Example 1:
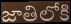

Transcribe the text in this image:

జాతిలోకి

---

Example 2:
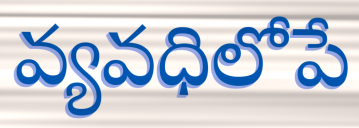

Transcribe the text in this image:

వ్యవధిలోపే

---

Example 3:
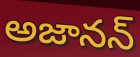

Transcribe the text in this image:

అజానన్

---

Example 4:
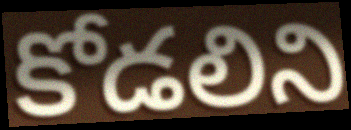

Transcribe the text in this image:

కోడలిని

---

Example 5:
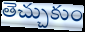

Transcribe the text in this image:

తెచ్చుకుం